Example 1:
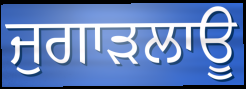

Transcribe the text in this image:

ਜੁਗਾੜਲਾਊ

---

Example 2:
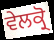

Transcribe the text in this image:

ਵੇਲਕ੍ਰੋ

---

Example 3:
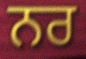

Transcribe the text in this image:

ਨਰ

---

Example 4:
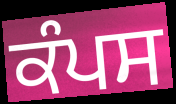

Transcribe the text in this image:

ਕੰਪਸ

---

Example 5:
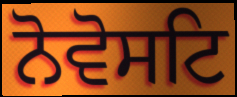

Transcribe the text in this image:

ਨੋਵੋਸਟਿ